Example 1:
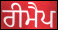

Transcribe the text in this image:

ਰੀਮੈਪ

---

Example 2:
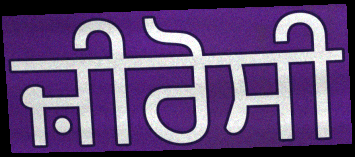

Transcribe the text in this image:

ਜ਼ੀਰੋਸੀ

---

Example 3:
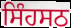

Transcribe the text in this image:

ਸਿੰਹਸਠ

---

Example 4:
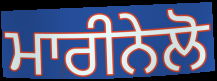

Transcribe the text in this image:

ਮਾਰੀਨੇਲੋ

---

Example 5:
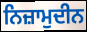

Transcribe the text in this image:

ਨਿਜ਼ਾਮੁਦੀਨ